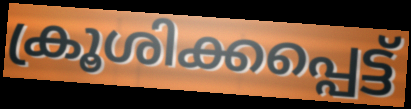
ക്രൂശിക്കപ്പെട്ട്